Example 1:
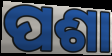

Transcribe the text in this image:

ପଶା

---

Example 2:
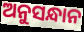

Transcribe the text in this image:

ଅନୁସନ୍ଧାନ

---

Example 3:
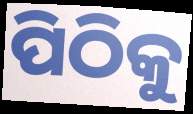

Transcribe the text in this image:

ପିଠିକୁ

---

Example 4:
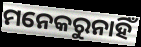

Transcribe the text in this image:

ମନେକରୁନାହିଁ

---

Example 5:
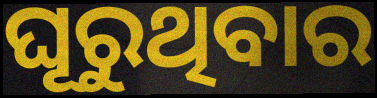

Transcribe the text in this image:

ଘୂରୁଥିବାର